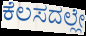
ಕೆಲಸದಲ್ಲೇ